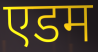
एडम